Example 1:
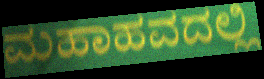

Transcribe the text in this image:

ಮಹಾಹವದಲ್ಲಿ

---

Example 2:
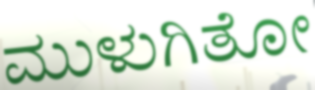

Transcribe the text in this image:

ಮುಳುಗಿತೋ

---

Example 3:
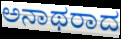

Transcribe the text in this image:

ಅನಾಥರಾದ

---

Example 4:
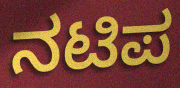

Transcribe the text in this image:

ನಟಿಪ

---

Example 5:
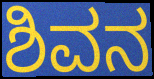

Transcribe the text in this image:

ಶಿವನ